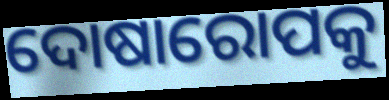
ଦୋଷାରୋପକୁ